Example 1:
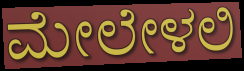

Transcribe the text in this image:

ಮೇಲೇಳಲಿ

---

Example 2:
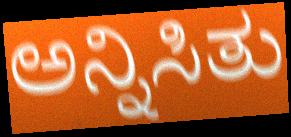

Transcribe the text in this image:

ಅನ್ನಿಸಿತು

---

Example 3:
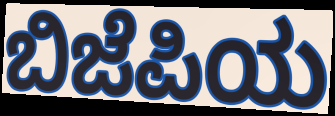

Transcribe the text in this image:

ಬಿಜೆಪಿಯ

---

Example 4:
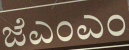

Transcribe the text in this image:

ಜೆಎಂಎಂ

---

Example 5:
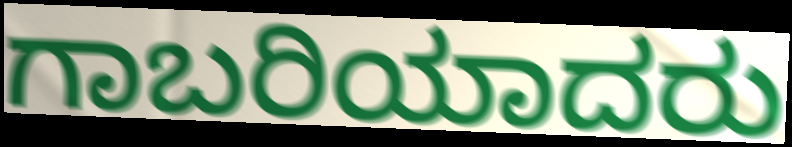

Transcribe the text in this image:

ಗಾಬರಿಯಾದರು